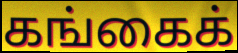
கங்கைக்